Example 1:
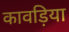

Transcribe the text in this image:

कावड़िया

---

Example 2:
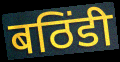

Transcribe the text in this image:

बठिंडी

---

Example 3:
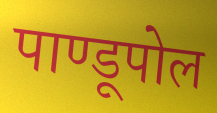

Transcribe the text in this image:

पाण्डूपोल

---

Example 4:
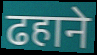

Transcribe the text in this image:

ढहाने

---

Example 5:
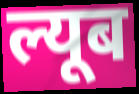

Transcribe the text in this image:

ल्यूब